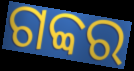
ଗବ୍ବର